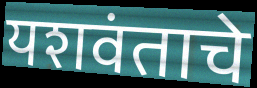
यशवंताचे